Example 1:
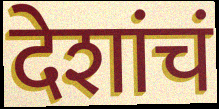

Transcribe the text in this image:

देशांचं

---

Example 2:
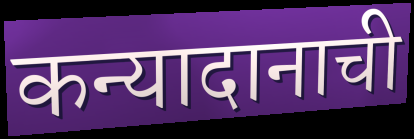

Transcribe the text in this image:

कन्यादानाची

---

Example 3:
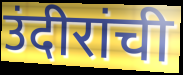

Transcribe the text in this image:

उंदीरांची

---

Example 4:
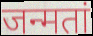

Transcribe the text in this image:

जन्मतां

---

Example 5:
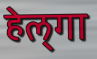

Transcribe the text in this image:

हेल्गा